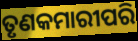
ତୃଣକମାରୀପରି